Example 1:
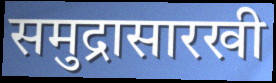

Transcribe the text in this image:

समुद्रासारखी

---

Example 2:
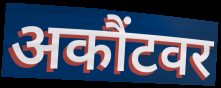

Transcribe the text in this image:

अकौंटवर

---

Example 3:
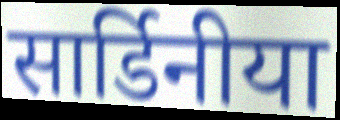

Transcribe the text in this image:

सार्डिनीया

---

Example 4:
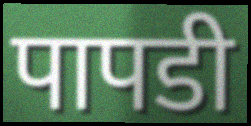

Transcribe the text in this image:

पापडी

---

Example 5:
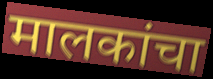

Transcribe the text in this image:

मालकांचा